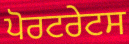
ਪੋਰਟਰੇਟਸ